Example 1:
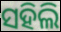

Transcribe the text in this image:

ସହିଲି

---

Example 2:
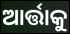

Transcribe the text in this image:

ଆର୍ତ୍ତାକୁ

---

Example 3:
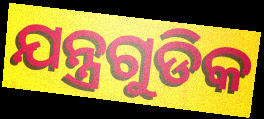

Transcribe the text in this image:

ଯନ୍ତ୍ରଗୁଡିକ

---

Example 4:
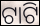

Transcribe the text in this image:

ଟାଟି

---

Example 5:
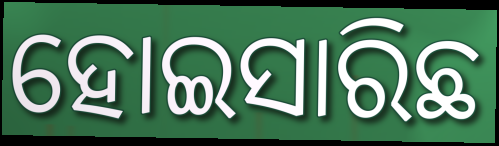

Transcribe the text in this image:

ହୋଇସାରିଛ